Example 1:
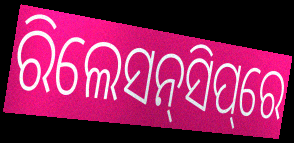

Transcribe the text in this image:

ରିଲେସନ୍‌ସିପ୍‌ରେ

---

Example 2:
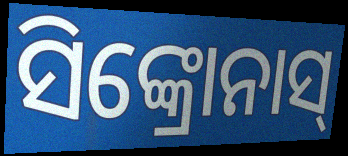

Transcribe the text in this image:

ସିଙ୍କ୍ରୋନାସ୍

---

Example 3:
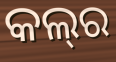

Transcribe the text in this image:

କଲ୍‌ର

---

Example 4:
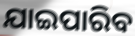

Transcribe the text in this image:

ଯାଇପାରିବ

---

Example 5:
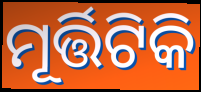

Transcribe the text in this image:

ମୂର୍ତ୍ତିଟିକି